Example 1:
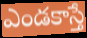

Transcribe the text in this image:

ఎండకాస్తే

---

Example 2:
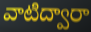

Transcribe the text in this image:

వాటిద్వారా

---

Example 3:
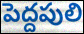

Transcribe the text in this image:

పెద్దపులి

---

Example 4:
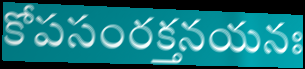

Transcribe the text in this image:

కోపసంరక్తనయనః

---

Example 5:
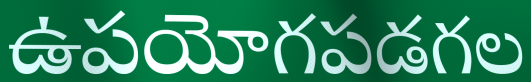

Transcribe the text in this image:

ఉపయోగపడగల